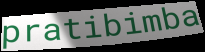
pratibimba